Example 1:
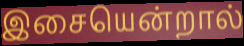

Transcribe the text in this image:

இசையென்றால்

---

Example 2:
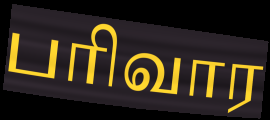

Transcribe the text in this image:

பரிவார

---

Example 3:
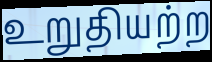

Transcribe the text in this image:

உறுதியற்ற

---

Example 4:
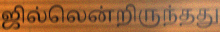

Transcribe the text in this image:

ஜில்லென்றிருந்தது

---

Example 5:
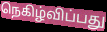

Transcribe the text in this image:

நெகிழ்விப்பது